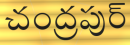
చంద్రపుర్